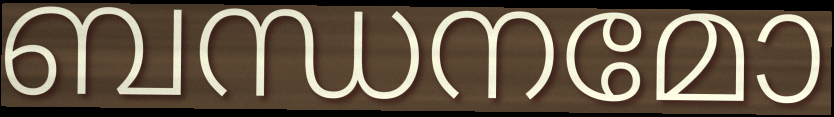
ബന്ധനമോ